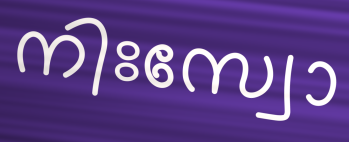
നിഃസ്വോ